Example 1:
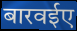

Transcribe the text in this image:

बारवईए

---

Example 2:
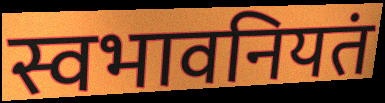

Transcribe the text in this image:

स्वभावनियतं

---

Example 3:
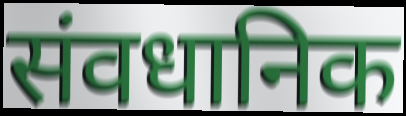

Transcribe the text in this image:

संवधानिक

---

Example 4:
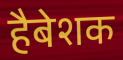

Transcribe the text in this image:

हैबेशक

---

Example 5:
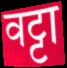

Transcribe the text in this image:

वट्टा